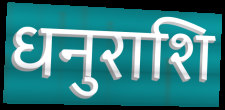
धनुराशि